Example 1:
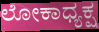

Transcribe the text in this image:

ಲೋಕಾಧ್ಯಕ್ಷ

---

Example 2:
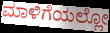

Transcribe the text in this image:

ಮಾಳಿಗೆಯಲ್ಲೋ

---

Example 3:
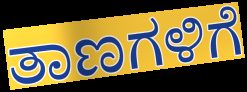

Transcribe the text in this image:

ತಾಣಗಳಿಗೆ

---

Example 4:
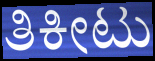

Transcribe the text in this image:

ತಿಕೀಟು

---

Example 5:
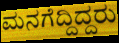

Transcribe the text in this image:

ಮನಗೆದ್ದಿದ್ದರು